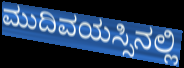
ಮುದಿವಯಸ್ಸಿನಲ್ಲಿ